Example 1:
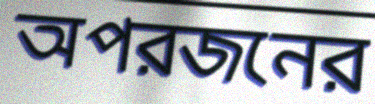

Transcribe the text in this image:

অপরজনের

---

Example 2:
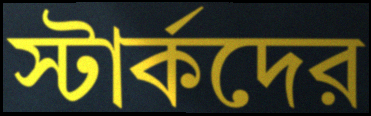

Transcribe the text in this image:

স্টার্কদের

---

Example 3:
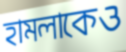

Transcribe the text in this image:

হামলাকেও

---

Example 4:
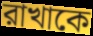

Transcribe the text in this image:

রাখাকে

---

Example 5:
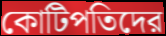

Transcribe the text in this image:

কোটিপতিদের